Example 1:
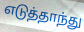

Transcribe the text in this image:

எடுத்தாந்து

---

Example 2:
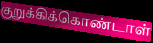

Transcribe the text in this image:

குறுக்கிக்கொண்டாள்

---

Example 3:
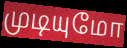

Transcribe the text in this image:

முடியுமோ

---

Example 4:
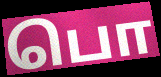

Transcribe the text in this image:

பொ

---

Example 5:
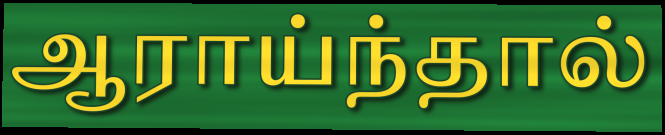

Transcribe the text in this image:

ஆராய்ந்தால்